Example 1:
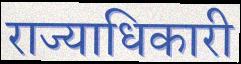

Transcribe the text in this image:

राज्याधिकारी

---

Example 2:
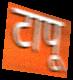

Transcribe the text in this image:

टापू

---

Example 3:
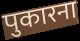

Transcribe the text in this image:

पुकारना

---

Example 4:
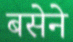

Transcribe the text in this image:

बसेने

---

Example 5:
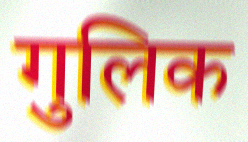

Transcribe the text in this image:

गुलिक